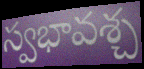
స్వభావశ్చ